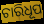
ଚାରିଧୂପ